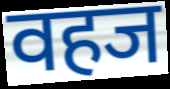
वहज